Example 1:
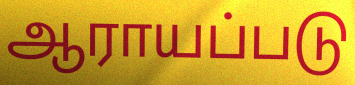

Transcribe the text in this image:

ஆராயப்படு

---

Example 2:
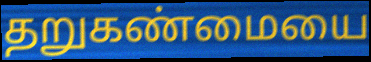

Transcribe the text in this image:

தறுகண்மையை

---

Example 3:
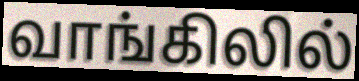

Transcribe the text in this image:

வாங்கிலில்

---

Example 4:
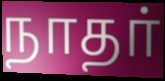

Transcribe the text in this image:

நாதர்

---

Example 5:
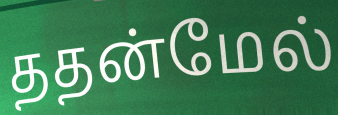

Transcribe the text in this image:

ததன்மேல்